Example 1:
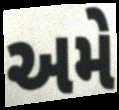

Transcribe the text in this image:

અમે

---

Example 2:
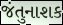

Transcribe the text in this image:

જંતુનાશક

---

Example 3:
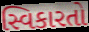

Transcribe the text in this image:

સ્વિકારતો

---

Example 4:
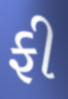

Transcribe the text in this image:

ફી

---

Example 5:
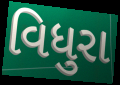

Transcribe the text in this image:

વિધુરા